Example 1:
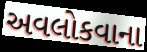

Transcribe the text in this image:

અવલોકવાના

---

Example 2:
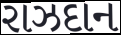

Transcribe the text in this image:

રાઝદાન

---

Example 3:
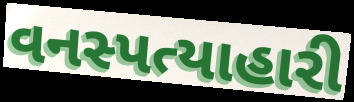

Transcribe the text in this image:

વનસ્પત્યાહારી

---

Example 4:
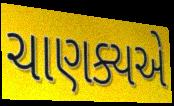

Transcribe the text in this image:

ચાણક્યએ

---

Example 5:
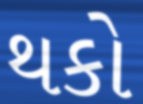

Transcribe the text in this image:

થકો